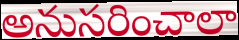
అనుసరించాలా